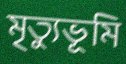
মৃত্যুভূমি